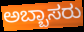
ಅಬ್ಬಾಸರು